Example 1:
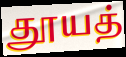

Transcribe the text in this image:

தூயத்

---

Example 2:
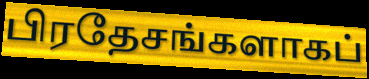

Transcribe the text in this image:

பிரதேசங்களாகப்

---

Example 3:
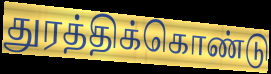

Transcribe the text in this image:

துரத்திக்கொண்டு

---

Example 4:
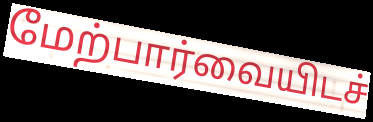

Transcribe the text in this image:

மேற்பார்வையிடச்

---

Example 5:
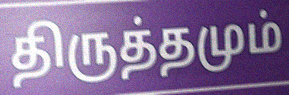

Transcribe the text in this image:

திருத்தமும்